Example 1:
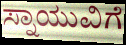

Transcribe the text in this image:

ಸ್ನಾಯುವಿಗೆ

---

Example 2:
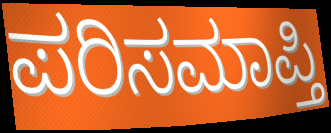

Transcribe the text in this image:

ಪರಿಸಮಾಪ್ತಿ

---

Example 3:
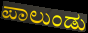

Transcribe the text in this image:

ಪಾಲುಂಡು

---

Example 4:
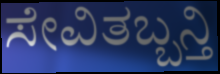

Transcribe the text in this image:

ಸೇವಿತಬ್ಬನ್ತಿ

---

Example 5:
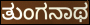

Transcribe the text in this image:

ತುಂಗನಾಥ